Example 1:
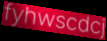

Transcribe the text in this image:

fyhwscdcj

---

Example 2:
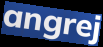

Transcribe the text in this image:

angrej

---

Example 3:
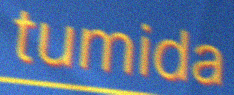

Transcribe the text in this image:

tumida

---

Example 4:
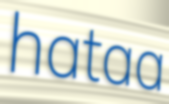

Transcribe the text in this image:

hataa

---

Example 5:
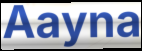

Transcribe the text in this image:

Aayna